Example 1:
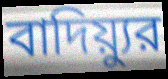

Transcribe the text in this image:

বাদিয়্যুর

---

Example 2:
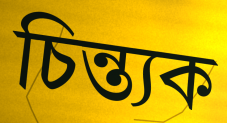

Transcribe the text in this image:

চিন্ত্যক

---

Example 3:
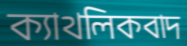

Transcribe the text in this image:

ক্যাথলিকবাদ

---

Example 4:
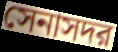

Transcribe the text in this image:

সেনাসদর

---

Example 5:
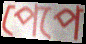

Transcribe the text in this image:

পেপে